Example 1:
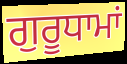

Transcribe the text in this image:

ਗੁਰੂਧਾਮਾਂ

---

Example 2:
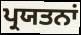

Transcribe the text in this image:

ਪ੍ਰਯਤਨਾਂ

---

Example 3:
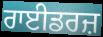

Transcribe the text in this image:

ਰਾਈਡਰਜ਼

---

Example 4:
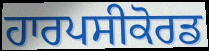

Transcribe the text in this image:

ਹਾਰਪਸੀਕੋਰਡ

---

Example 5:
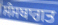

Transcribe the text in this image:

ਸੰਸਥਾਗਤ